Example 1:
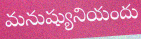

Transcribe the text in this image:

మనుష్యునియందు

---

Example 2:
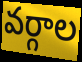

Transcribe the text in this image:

వర్గాల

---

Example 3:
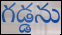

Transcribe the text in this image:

గడ్డను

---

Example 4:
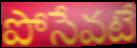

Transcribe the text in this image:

పోసేవటే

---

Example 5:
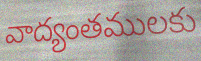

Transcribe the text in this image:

వాద్యంతములకు